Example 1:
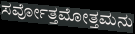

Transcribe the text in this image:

ಸರ್ವೋತ್ತಮೋತ್ತಮನು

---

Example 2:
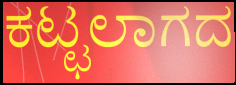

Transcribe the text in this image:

ಕಟ್ಟಲಾಗದ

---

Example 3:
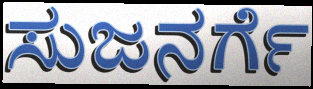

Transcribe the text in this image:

ಸುಜನರ್ಗೆ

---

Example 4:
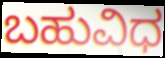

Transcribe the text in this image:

ಬಹುವಿಧ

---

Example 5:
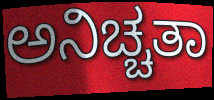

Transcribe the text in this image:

ಅನಿಚ್ಚತಾ